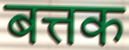
बत्तक